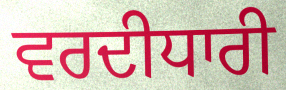
ਵਰਦੀਧਾਰੀ